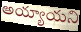
అయ్యాయని